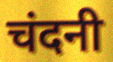
चंदनी